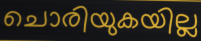
ചൊരിയുകയില്ല